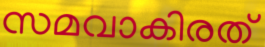
സമവാകിരത്